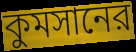
কুমসানের